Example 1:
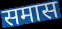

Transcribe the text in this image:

समास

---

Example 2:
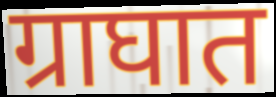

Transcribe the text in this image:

ग्राघात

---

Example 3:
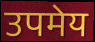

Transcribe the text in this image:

उपमेय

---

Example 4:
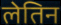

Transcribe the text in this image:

लेतिन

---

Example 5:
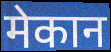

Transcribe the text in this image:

मेकान